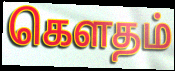
கௌதம்